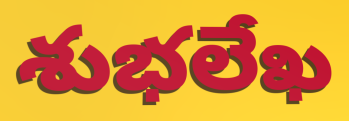
శుభలేఖ